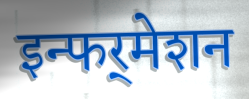
इन्फर्मेशन